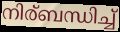
നിര്ബന്ധിച്ച്